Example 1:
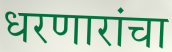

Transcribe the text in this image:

धरणारांचा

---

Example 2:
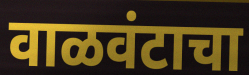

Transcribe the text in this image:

वाळवंटाचा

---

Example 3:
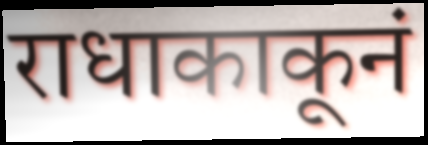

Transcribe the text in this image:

राधाकाकूनं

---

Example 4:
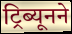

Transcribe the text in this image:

ट्रिब्यूनने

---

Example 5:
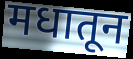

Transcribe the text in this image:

मधातून